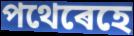
পথেৰেহে